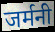
जर्मनी